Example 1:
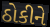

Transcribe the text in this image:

ઠોકીને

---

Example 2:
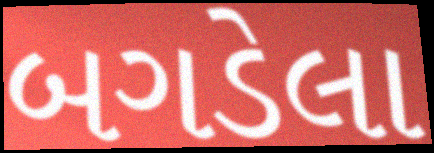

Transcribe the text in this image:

બગડેલા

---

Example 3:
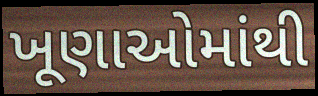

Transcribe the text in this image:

ખૂણાઓમાંથી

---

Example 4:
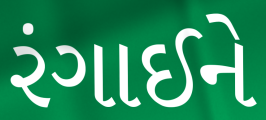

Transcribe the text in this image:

રંગાઈને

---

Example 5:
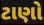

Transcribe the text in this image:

ટાણો